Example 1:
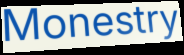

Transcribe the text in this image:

Monestry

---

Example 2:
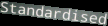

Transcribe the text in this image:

Standardised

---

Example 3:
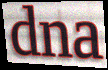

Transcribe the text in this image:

dna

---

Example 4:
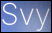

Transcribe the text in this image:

Svy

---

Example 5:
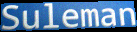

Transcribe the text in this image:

Suleman